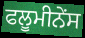
ਫਲੂਮੀਨੇਂਸ